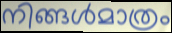
നിങ്ങൾമാത്രം